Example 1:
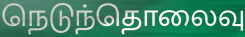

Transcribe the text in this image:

நெடுந்தொலைவு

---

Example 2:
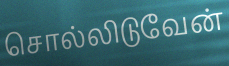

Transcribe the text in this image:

சொல்லிடுவேன்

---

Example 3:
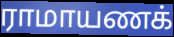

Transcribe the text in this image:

ராமாயணக்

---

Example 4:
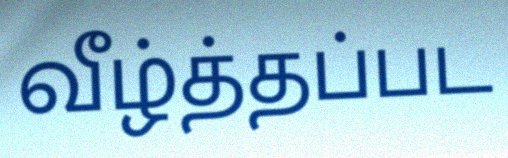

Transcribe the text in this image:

வீழ்த்தப்பட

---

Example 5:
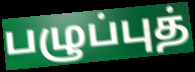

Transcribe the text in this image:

பழுப்புத்